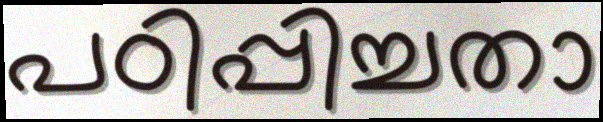
പഠിപ്പിച്ചതാ